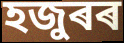
হজুৰৰ